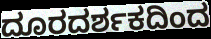
ದೂರದರ್ಶಕದಿಂದ